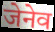
जेनेव